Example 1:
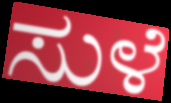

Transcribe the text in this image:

ಸುಳೆ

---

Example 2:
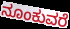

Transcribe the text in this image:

ನೂಂಕುವರೆ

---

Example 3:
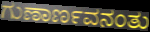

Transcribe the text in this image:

ಗುಣಾರ್ಣವನಂತು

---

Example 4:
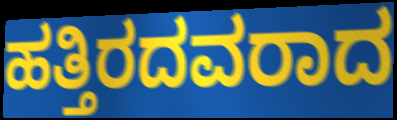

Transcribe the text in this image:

ಹತ್ತಿರದವರಾದ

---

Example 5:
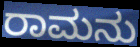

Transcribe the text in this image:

ರಾಮನು